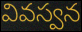
వివస్వన